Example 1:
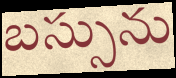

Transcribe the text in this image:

బస్సును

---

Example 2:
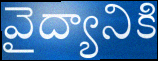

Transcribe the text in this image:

వైద్యానికి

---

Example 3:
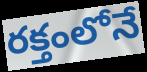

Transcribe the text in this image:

రక్తంలోనే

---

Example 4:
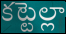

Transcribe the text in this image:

కట్టెల్లా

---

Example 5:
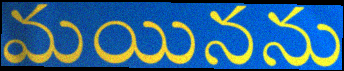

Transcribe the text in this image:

మయినను